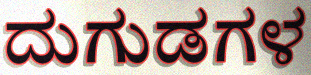
ದುಗುಡಗಳ